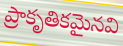
ప్రాకృతికమైనవి